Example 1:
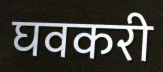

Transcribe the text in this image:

घवकरी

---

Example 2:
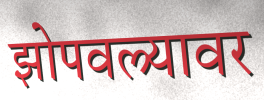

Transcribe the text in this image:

झोपवल्यावर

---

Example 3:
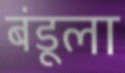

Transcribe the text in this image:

बंडूला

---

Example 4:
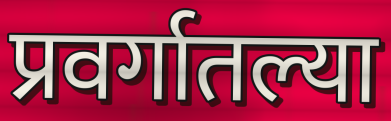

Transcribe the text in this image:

प्रवर्गातल्या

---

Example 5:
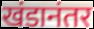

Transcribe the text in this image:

खंडानंतर